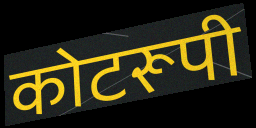
कोटरूपी